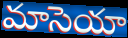
మాసెయా